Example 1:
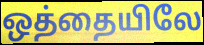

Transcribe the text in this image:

ஒத்தையிலே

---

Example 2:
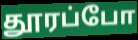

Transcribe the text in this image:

தூரப்போ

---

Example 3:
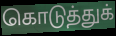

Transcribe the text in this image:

கொடுத்துக்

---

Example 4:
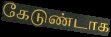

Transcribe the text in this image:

கேடுண்டாக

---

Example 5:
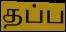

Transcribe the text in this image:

தப்ப